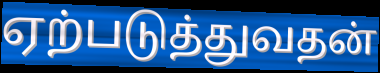
ஏற்படுத்துவதன்